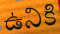
ఉనికి